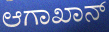
ಆಗಾಖಾನ್